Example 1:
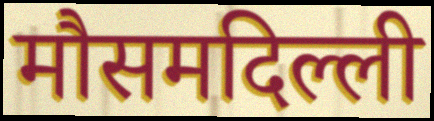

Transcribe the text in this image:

मौसमदिल्ली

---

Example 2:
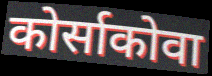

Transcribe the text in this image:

कोर्साकोवा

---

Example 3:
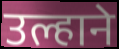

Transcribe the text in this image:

उल्हाने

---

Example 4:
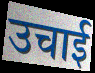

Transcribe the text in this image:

उचाई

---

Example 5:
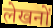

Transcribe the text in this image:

लेखनों